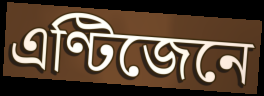
এণ্টিজেনে